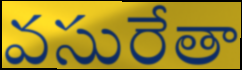
వసురేతా